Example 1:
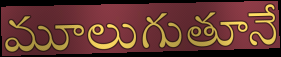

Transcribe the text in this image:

మూలుగుతూనే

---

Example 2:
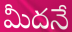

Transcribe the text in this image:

మీదనే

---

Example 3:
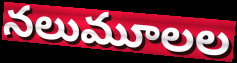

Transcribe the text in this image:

నలుమూలల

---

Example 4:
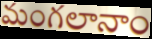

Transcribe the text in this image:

మంగలానాం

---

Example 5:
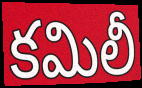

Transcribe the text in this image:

కమిలీ